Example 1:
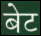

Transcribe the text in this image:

बेट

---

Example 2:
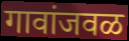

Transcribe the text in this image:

गावांजवळ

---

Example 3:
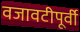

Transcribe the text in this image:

वजावटीपूर्वी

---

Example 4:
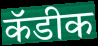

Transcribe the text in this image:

कॅडीक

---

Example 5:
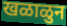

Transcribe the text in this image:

खळाळुन